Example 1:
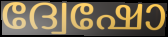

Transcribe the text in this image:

ദ്വേഷോ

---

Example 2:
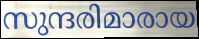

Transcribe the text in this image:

സുന്ദരിമാരായ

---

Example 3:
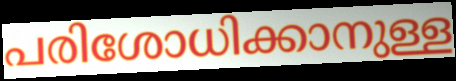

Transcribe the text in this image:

പരിശോധിക്കാനുള്ള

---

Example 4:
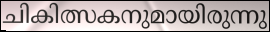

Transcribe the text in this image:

ചികിത്സകനുമായിരുന്നു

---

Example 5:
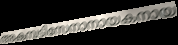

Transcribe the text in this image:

അകമ്പടിസേനാനായകനായ